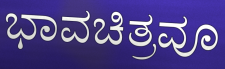
ಭಾವಚಿತ್ರವೂ